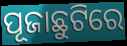
ପୂଜାଛୁଟିରେ